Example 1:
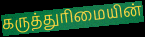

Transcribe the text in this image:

கருத்துரிமையின்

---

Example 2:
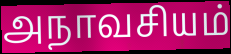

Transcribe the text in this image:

அநாவசியம்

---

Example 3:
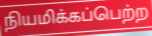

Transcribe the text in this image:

நியமிக்கப்பெற்ற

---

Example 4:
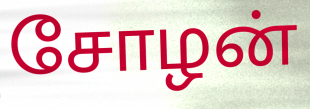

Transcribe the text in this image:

சோழன்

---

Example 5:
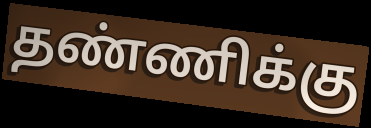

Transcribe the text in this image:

தண்ணிக்கு